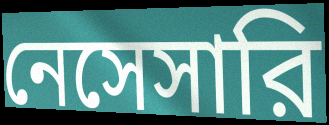
নেসেসারি